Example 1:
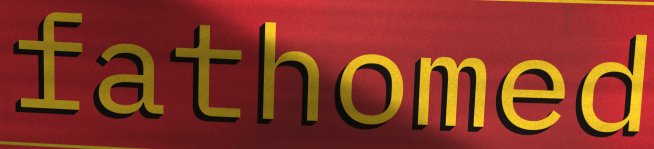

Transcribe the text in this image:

fathomed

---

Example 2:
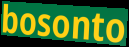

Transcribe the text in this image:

bosonto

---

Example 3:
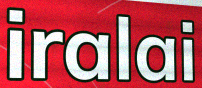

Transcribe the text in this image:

iralai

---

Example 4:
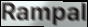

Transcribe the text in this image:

Rampal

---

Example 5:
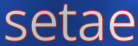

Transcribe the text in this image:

setae